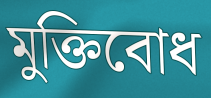
মুক্তিবোধ